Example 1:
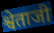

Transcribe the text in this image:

श्वेताजी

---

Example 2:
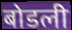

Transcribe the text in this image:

बोडली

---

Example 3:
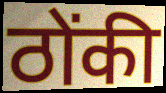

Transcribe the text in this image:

ठोंकी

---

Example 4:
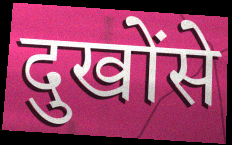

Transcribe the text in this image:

दुखोंसे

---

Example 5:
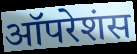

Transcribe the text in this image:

ऑपरेशंस